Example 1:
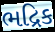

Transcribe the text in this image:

ભદ્રિક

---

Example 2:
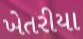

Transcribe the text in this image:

ખેતરીયા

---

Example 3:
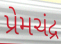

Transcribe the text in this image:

પ્રેમચંદ્ર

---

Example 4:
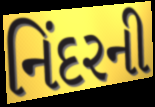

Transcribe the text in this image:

નિંદરની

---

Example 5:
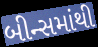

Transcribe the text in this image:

બીન્સમાંથી